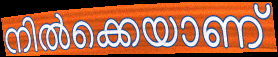
നിൽക്കെയാണ്